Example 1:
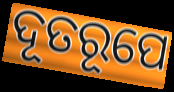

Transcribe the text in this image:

ଦୂତରୂପେ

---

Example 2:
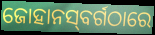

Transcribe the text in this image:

ଜୋହାନସ୍‌ବର୍ଗଠାରେ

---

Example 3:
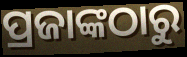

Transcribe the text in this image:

ପ୍ରଜାଙ୍କଠାରୁ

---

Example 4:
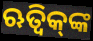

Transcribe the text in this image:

ଋତ୍ୱିକ୍‌ଙ୍କ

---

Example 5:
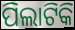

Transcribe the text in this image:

ପିଲାଟିକି